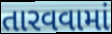
તારવવામાં